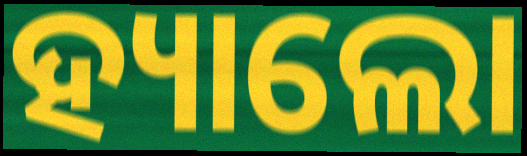
ହ୍ୟାଲୋ